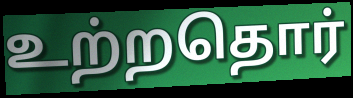
உற்றதொர்